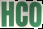
HCO